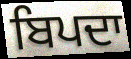
ਬਿਪਦਾ